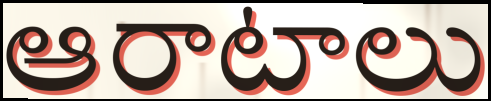
ఆరాటాలు